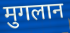
मुगलान